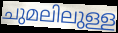
ചുമലിലുള്ള